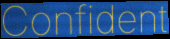
Confident